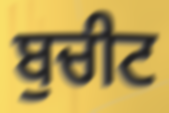
ਬੁਚੀਟ